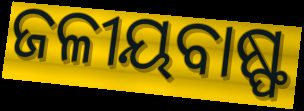
ଜଳୀୟବାଷ୍ଫ